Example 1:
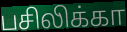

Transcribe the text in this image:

பசிலிக்கா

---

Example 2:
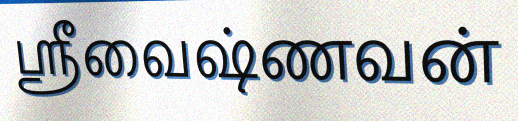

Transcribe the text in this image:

ஸ்ரீவைஷ்ணவன்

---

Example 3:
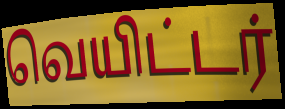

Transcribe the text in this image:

வெயிட்டர்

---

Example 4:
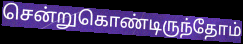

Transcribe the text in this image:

சென்றுகொண்டிருந்தோம்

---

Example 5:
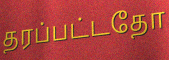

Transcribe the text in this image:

தரப்பட்டதோ